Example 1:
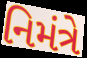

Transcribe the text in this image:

નિમંત્રે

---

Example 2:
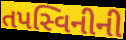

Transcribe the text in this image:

તપસ્વિનીની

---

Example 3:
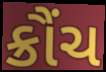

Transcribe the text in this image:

ક્રૌંચ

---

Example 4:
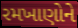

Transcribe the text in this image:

રમખાણોને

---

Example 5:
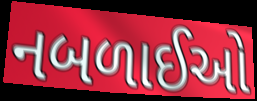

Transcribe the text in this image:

નબળાઈઓ